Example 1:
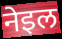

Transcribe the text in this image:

नेइल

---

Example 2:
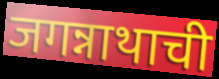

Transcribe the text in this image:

जगन्नाथाची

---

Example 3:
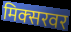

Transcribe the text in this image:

मिक्‍सरवर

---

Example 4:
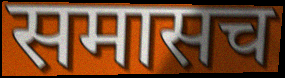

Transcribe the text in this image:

समासच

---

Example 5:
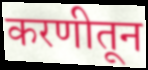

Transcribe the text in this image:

करणीतून